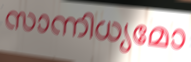
സാന്നിധ്യമോ